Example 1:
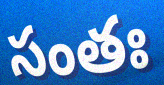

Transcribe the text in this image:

సంతః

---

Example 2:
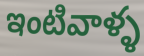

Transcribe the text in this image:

ఇంటివాళ్ళ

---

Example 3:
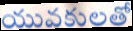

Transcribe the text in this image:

యువకులతో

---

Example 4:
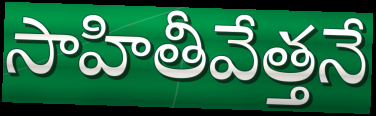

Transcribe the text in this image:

సాహితీవేత్తనే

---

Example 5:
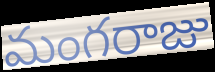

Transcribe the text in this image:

మంగరాజు